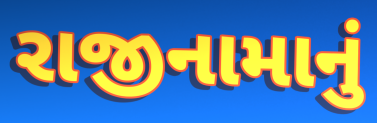
રાજીનામાનું